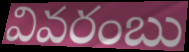
వివరంబు